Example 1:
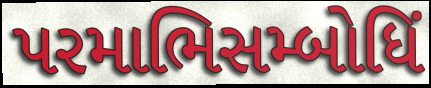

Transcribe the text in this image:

પરમાભિસમ્બોધિં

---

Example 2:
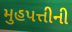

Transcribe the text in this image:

મુહપત્તીની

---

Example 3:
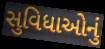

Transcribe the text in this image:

સુવિધાઓનું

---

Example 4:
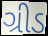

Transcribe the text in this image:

ગ્રીડ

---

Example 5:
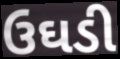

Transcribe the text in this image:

ઉઘડી